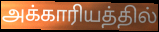
அக்காரியத்தில்